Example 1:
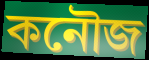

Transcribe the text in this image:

কনৌজ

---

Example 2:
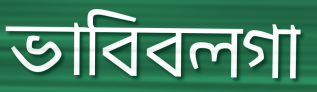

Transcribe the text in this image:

ভাবিবলগা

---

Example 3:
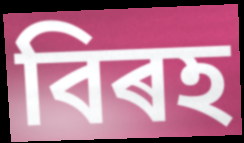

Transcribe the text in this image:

বিৰহ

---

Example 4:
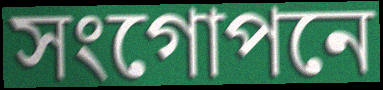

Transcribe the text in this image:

সংগোপনে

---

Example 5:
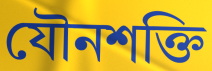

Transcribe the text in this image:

যৌনশক্তি